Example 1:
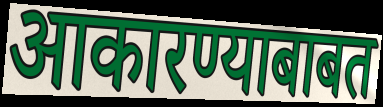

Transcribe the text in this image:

आकारण्याबाबत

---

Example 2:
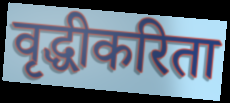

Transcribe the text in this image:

वृद्धीकरिता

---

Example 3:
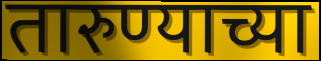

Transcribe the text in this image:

तारुण्याच्या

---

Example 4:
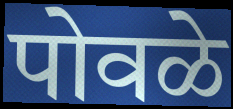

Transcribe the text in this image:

पोवळे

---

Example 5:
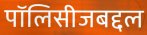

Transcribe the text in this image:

पॉलिसीजबद्दल